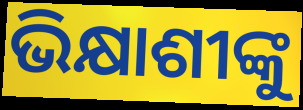
ଭିକ୍ଷାଶୀଙ୍କୁ